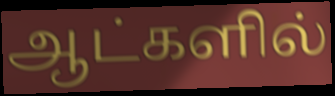
ஆட்களில்